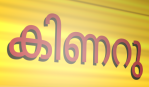
കിണറു